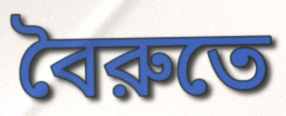
বৈরুতে